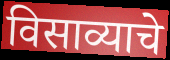
विसाव्याचे